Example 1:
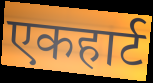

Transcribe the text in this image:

एकहार्ट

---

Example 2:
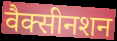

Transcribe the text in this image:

वैक्सीनशन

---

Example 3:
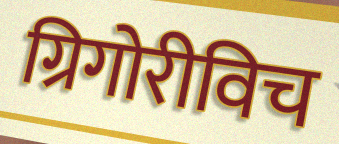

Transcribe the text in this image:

ग्रिगोरीविच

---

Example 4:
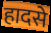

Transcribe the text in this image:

हादसे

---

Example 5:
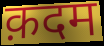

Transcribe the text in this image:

क़दम